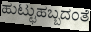
ಹುಟ್ಟುಹಬ್ಬದಂತೆ